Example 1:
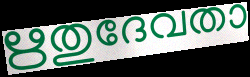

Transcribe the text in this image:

ഋതുദേവതാ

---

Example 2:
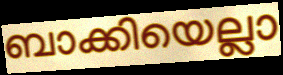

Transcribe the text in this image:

ബാക്കിയെല്ലാ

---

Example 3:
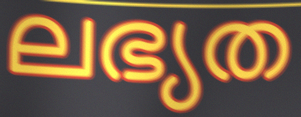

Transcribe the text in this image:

ലഭ്യത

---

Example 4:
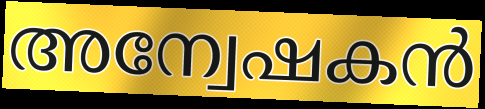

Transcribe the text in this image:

അന്വേഷകൻ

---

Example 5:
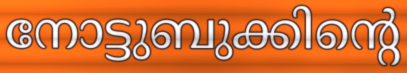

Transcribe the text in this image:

നോട്ടുബുക്കിന്റെ